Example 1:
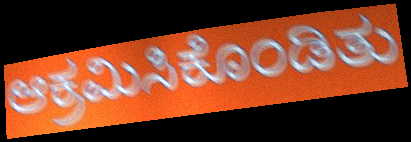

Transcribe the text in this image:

ಆಕ್ರಮಿಸಿಕೊಂಡಿತು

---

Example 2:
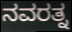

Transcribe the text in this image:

ನವರತ್ನ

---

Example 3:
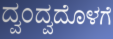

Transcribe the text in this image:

ದ್ವಂದ್ವದೊಳಗೆ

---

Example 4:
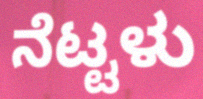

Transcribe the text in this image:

ನೆಟ್ಟಳು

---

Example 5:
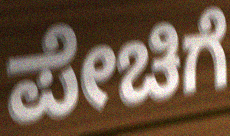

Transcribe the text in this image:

ಪೇಚಿಗೆ